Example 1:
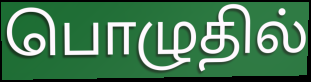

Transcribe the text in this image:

பொழுதில்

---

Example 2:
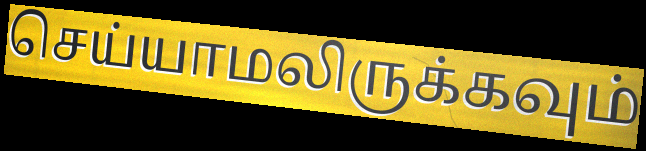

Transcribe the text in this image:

செய்யாமலிருக்கவும்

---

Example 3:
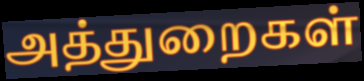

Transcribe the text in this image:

அத்துறைகள்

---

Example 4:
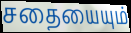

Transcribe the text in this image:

சதையையும்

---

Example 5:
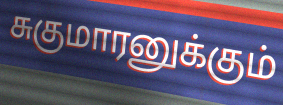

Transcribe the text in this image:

சுகுமாரனுக்கும்